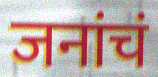
जनांचं